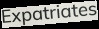
Expatriates